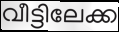
വീട്ടിലേക്ക